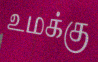
உமக்கு